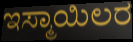
ಇಸ್ಮಾಯಿಲರ